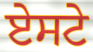
ਏਸਟੇ